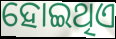
ହୋଇଥିଏ